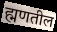
ह्मणतील